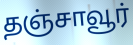
தஞ்சாவூர்